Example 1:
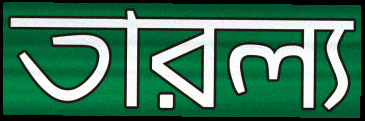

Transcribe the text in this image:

তারল্য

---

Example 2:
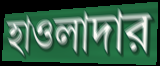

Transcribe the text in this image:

হাওলাদার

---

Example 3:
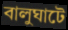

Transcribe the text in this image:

বালুঘাটে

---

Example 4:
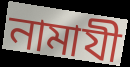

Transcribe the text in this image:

নামাযী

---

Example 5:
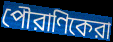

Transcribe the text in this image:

পৌরাণিকেরা